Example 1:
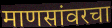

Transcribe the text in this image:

माणसांवरचा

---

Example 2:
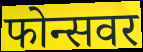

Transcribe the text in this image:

फोन्सवर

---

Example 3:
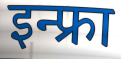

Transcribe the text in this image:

इन्फ्रा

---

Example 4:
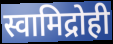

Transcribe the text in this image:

स्वामिद्रोही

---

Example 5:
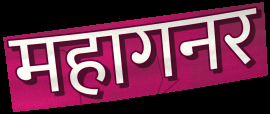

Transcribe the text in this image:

महागनर